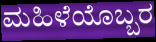
ಮಹಿಳೆಯೊಬ್ಬರ